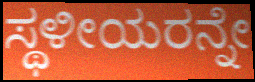
ಸ್ಥಳೀಯರನ್ನೇ